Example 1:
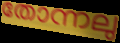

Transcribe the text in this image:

തോന്നലു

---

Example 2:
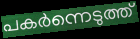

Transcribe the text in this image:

പകർന്നെടുത്ത്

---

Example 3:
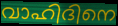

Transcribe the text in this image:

വാഹിദിനെ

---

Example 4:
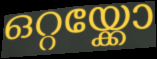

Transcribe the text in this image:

ഒറ്റയ്ക്കോ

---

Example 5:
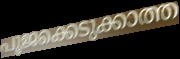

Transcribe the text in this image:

പൂജക്കെടുക്കാത്ത